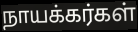
நாயக்கர்கள்